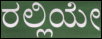
ರಲ್ಲಿಯೇ